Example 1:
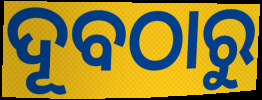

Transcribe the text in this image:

ଦୂବଠାରୁ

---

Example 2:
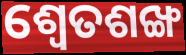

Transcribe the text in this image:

ଶ୍ୱେତଶଙ୍ଖ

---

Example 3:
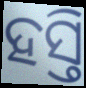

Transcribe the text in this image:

ହସ୍ତି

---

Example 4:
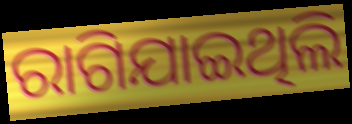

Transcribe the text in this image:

ରାଗିଯାଇଥିଲି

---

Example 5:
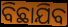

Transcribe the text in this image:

ବିଛାଯିବ